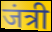
जंत्री